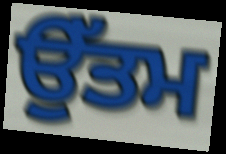
ਉੱਤਮ